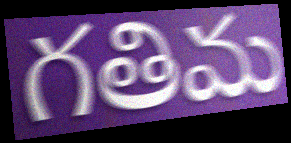
గతిమ